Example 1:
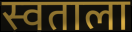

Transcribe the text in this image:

स्वताला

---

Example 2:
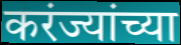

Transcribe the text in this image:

करंज्यांच्या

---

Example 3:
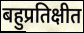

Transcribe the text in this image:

बहुप्रतिक्षीत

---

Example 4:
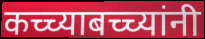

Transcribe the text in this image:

कच्च्याबच्च्यांनी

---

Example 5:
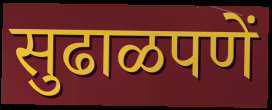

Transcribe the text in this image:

सुढाळपणें